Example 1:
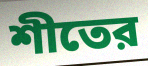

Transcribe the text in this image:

শীতের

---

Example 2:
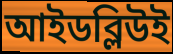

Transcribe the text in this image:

আইডব্লিউই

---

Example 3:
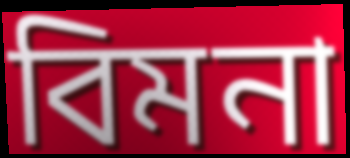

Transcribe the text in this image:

বিমনা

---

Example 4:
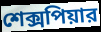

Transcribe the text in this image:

শেক্সপিয়ার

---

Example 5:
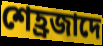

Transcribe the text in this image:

শেহ্রজাদে